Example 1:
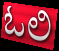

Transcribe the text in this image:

ಓಲಿ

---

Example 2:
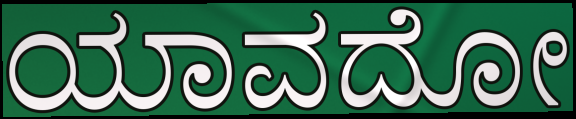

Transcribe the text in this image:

ಯಾವದೋ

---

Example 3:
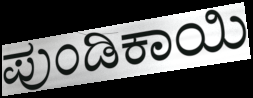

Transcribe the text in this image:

ಪುಂಡಿಕಾಯಿ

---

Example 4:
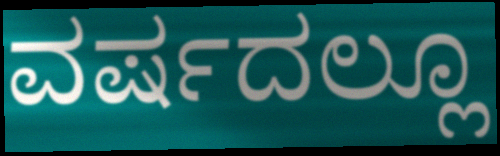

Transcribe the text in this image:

ವರ್ಷದಲ್ಲೂ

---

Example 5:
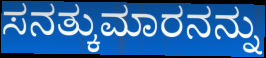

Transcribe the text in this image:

ಸನತ್ಕುಮಾರನನ್ನು